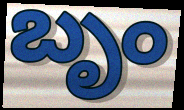
బృం